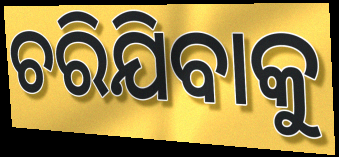
ଚରିଯିବାକୁ